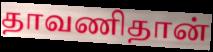
தாவணிதான்